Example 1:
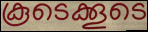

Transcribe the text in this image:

കൂടെക്കൂടെ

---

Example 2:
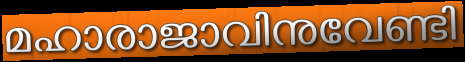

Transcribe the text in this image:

മഹാരാജാവിനുവേണ്ടി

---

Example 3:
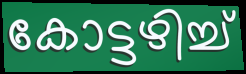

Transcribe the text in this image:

കോട്ടഴിച്ച്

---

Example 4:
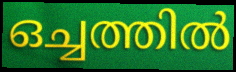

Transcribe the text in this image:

ഒച്ചത്തിൽ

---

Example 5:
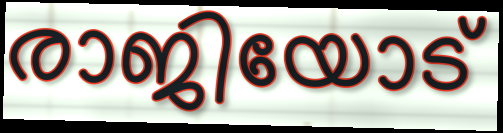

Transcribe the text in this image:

രാജിയോട്